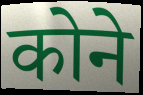
कोने